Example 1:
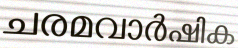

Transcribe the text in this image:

ചരമവാർഷിക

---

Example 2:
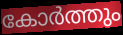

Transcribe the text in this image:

കോർത്തും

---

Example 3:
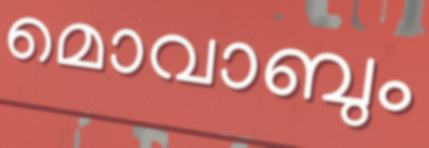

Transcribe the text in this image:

മൊവാബും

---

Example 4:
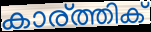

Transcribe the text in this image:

കാര്ത്തിക്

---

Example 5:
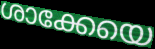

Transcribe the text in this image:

ശാക്കേയെ